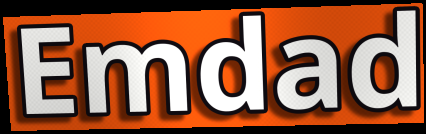
Emdad